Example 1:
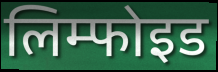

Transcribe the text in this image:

लिम्फोइड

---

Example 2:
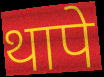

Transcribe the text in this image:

थापे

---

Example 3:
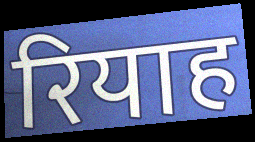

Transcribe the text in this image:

रियाह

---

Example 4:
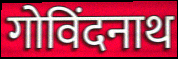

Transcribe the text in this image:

गोविंदनाथ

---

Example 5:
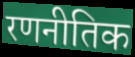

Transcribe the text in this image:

रणनीतिक